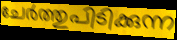
ചേർത്തുപിടിക്കുന്ന